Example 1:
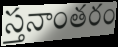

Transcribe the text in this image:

స్తనాంతరం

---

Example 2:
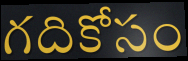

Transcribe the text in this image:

గదికోసం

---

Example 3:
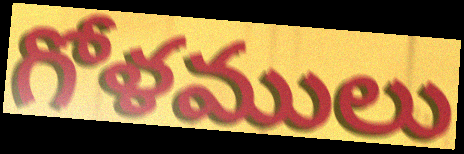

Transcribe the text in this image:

గోళములు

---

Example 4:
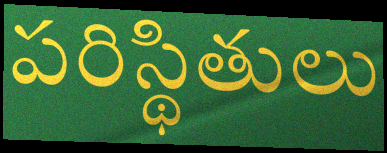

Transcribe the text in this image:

పరిస్థితులు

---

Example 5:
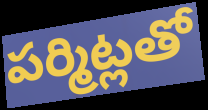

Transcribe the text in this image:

పర్మిట్లతో